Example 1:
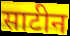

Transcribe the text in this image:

साटीन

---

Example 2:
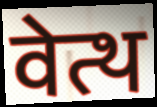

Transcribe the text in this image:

वेत्थ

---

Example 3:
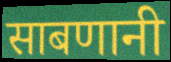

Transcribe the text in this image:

साबणानी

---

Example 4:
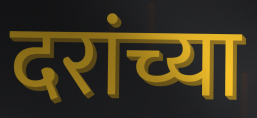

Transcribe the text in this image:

दरांच्या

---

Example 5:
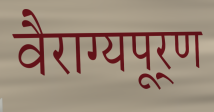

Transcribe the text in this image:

वैराग्यपूर्ण